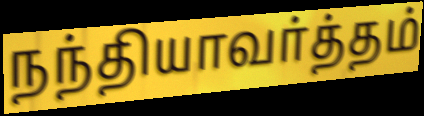
நந்தியாவர்த்தம்